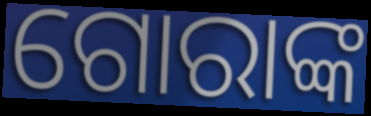
ଗୋରାଙ୍କ